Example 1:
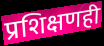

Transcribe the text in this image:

प्रशिक्षणही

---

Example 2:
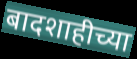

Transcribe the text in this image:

बादशाहीच्या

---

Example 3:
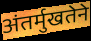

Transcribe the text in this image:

अंतर्मुखतेने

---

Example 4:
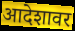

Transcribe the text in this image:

आदेशावर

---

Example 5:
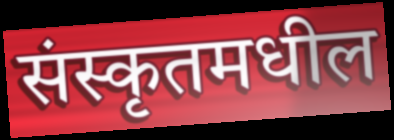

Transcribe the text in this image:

संस्कृतमधील